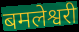
बमलेश्वरी